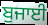
ਬੁਜਾਈ